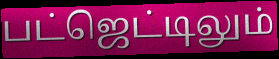
பட்ஜெட்டிலும்